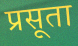
प्रसूता